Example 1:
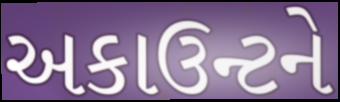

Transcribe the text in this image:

અકાઉન્ટને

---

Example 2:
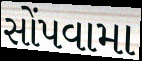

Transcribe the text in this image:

સોંપવામા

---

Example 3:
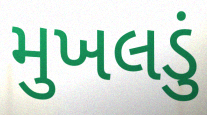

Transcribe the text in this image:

મુખલડું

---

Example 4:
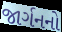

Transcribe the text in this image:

જાર્ગનનો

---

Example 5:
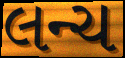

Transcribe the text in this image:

લન્ચ